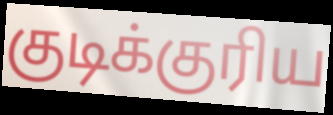
குடிக்குரிய